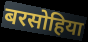
बरसोहिया